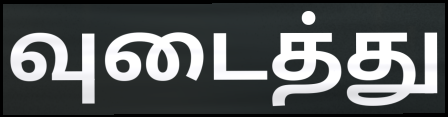
வுடைத்து